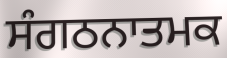
ਸੰਗਠਨਾਤਮਕ